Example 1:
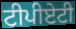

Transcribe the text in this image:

ਟੀਪੀਏਟੀ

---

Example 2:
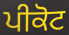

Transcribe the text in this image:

ਪੀਕੋਟ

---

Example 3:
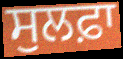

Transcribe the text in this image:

ਸੁਲਫ਼ਾ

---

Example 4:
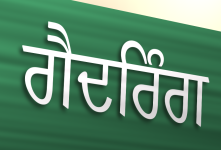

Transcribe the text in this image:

ਗੈਦਰਿੰਗ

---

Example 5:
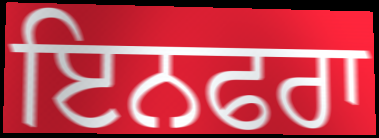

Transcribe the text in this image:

ਇਨਫਰਾ